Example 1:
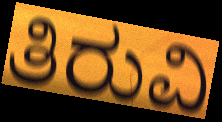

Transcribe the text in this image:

ತಿರುವಿ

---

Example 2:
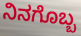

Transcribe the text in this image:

ನಿನಗೊಬ್ಬ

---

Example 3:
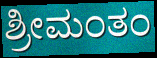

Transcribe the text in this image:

ಶ್ರೀಮಂತಂ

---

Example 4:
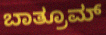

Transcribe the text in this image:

ಬಾತ್ರೂಮ್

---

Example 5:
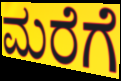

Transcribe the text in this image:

ಮರೆಗೆ